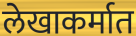
लेखाकर्मात